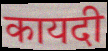
कायदी